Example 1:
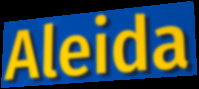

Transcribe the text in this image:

Aleida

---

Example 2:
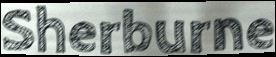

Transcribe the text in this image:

Sherburne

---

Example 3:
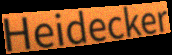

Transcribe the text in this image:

Heidecker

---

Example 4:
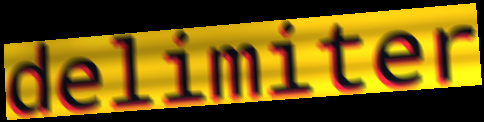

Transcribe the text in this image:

delimiter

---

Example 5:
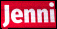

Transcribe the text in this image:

Jenni